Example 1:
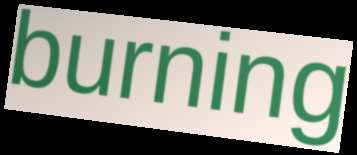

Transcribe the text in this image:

burning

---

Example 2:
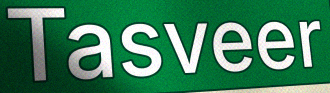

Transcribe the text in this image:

Tasveer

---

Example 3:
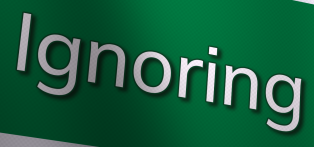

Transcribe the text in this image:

Ignoring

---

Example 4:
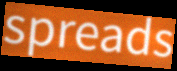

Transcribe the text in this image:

spreads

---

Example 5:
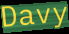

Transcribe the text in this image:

Davy